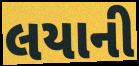
લયાની